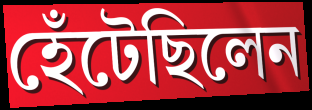
হেঁটেছিলেন